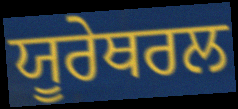
ਯੂਰੇਥਰਲ